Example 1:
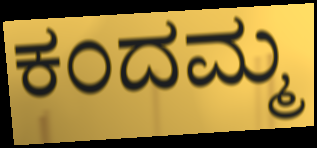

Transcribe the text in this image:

ಕಂದಮ್ಮ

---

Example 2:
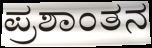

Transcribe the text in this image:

ಪ್ರಶಾಂತನ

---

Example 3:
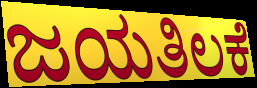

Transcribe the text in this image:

ಜಯತಿಲಕೆ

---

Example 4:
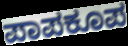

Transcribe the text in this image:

ಪಾಪಕೂಪ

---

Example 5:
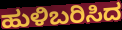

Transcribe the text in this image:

ಹುಳಿಬರಿಸಿದ